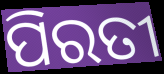
ପିରତୀ